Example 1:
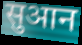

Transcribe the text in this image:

सुआन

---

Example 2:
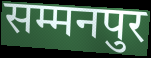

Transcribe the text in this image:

सम्मनपुर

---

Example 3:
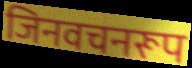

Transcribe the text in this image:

जिनवचनरूप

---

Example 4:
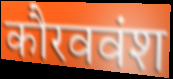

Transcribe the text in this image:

कौरववंश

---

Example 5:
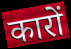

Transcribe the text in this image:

कारों